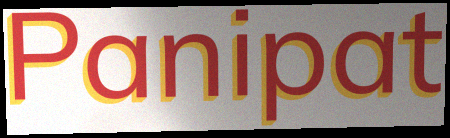
Panipat